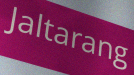
Jaltarang